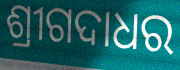
ଶ୍ରୀଗଦାଧର